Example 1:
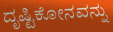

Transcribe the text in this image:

ದೃಷ್ಟಿಕೋನವನ್ನು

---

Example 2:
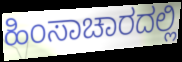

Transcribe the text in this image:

ಹಿಂಸಾಚಾರದಲ್ಲಿ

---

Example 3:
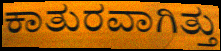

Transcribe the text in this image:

ಕಾತುರವಾಗಿತ್ತು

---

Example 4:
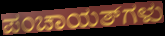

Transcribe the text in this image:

ಪಂಚಾಯತ್‌ಗಳು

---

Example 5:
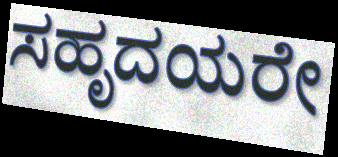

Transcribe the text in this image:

ಸಹೃದಯರೇ